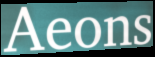
Aeons